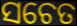
ସଚେତ